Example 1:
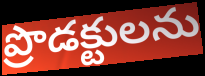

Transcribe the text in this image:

ప్రొడక్టులను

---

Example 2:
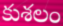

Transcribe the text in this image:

కుశలం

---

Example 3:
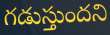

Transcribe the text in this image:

గడుస్తుందని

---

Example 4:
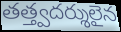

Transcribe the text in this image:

తత్త్వదర్శులైన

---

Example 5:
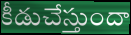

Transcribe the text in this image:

కీడుచేస్తుందా